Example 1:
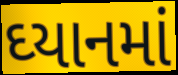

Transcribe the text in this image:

ઘ્યાનમાં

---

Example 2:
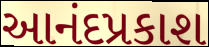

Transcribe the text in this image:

આનંદપ્રકાશ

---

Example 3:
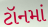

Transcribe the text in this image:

ટૉનમાં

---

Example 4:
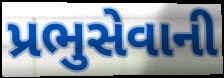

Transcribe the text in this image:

પ્રભુસેવાની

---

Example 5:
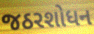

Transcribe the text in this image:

જઠરશોધન